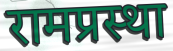
रामप्रस्था